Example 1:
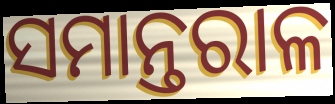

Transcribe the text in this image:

ସମାନ୍ତରାଳ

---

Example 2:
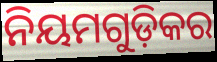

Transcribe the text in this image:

ନିୟମଗୁଡ଼ିକର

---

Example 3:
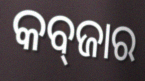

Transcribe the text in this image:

କବ୍‌ଜାର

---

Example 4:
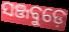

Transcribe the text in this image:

ସଞ୍ଜବୁଡ଼େ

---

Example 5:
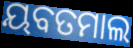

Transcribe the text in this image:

ୟବତମାଲ